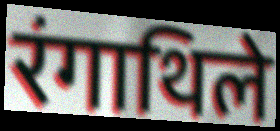
रंगाथिले